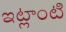
ఇట్లాంటి